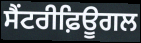
ਸੈਂਟਰੀਫ਼ਿਊਗਲ